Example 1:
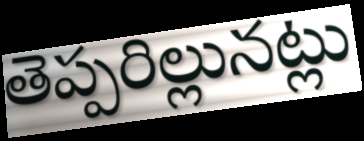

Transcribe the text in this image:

తెప్పరిల్లునట్లు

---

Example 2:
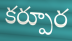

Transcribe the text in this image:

కర్పూర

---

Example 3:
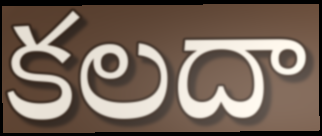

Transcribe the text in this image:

కలదా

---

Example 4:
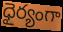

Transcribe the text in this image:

ధైర్యంగా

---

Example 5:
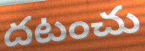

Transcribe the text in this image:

దటంచు